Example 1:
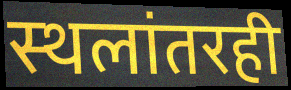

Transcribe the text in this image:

स्थलांतरही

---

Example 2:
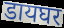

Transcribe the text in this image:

डायघर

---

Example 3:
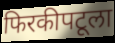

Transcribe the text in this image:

फिरकीपटूला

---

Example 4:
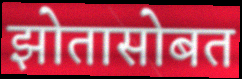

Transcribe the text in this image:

झोतासोबत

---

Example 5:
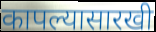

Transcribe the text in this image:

कापल्यासारखी